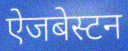
ऐजबेस्टन